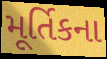
મૂર્તિકના